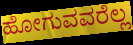
ಹೋಗುವವರೆಲ್ಲ